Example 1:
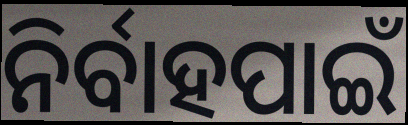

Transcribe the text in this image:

ନିର୍ବାହପାଇଁ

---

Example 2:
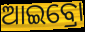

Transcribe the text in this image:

ଆଇବ୍ରୋ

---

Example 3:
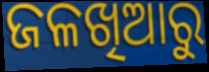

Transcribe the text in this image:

ଜଳଖିଆରୁ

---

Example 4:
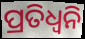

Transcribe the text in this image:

ପ୍ରତିଧ୍ବନି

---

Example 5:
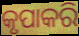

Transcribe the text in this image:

କୃପାକରି